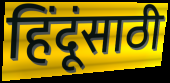
हिंदूंसाठी